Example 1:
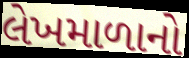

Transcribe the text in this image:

લેખમાળાનો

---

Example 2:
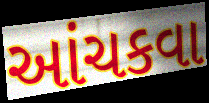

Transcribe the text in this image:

આંચકવા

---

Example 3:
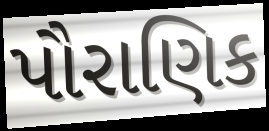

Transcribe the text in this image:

પૌરાણિક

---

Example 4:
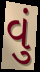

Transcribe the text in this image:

વું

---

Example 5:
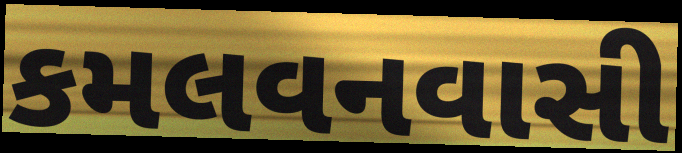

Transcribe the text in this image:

કમલવનવાસી